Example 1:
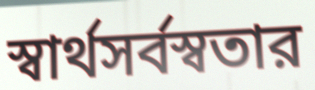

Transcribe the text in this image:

স্বার্থসর্বস্বতার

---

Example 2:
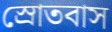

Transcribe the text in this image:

স্রোতবাস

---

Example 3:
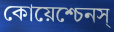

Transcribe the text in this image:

কোয়েশ্চেনস্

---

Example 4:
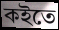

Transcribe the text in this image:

কইতে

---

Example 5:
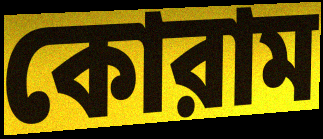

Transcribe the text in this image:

কোরাম